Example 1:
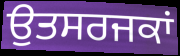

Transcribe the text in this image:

ਉਤਸਰਜਕਾਂ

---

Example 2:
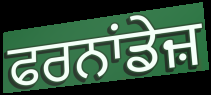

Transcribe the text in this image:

ਫਰਨਾਂਡੇਜ਼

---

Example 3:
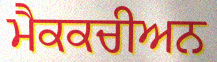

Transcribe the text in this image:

ਮੈਕਕਚੀਅਨ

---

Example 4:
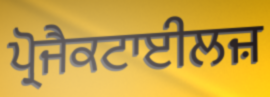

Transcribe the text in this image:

ਪ੍ਰੋਜੈਕਟਾਈਲਜ਼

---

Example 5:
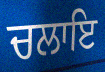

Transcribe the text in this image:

ਚਲਾਇ